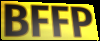
BFFP